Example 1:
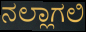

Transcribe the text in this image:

ನಲ್ಲಾಗಲಿ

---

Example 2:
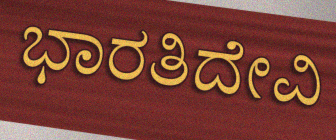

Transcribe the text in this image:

ಭಾರತಿದೇವಿ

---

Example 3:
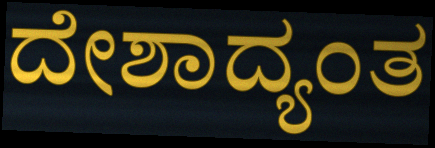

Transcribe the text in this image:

ದೇಶಾದ್ಯಂತ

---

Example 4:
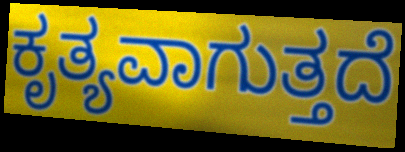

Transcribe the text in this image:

ಕೃತ್ಯವಾಗುತ್ತದೆ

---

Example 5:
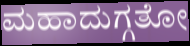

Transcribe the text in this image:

ಮಹಾದುಗ್ಗತೋ